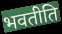
भवतीति